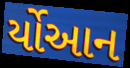
ર્યોઆન